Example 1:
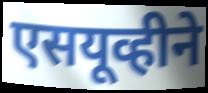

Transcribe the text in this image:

एसयूव्हीने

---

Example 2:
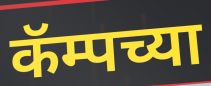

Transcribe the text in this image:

कॅम्पच्या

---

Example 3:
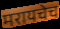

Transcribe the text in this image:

मरायचेच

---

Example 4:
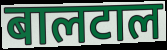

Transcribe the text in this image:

बालटाल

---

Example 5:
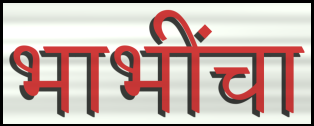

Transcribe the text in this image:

भाभींचा